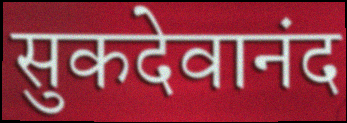
सुकदेवानंद